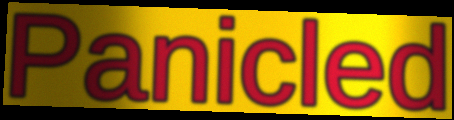
Panicled